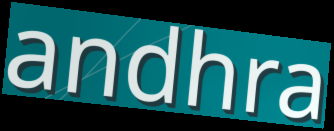
andhra